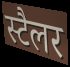
स्टैलर